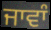
ਜਾਵਾੰ